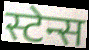
स्टेन्स